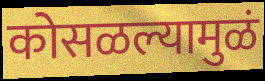
कोसळल्यामुळं